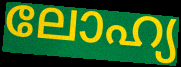
ലോഹ്യ